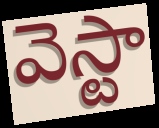
వెస్టా